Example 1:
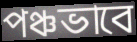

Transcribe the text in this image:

পঞ্চভাবে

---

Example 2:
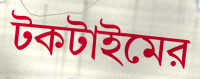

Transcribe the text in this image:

টকটাইমের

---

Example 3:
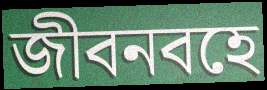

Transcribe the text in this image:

জীবনবহে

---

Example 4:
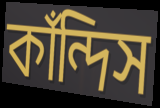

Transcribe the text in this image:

কাঁন্দিস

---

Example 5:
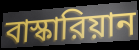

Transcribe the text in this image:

বাস্কারিয়ান